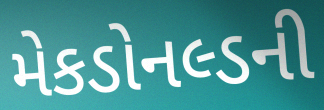
મેકડોનલ્ડની